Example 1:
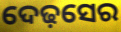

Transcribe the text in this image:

ଦେଢ଼ସେର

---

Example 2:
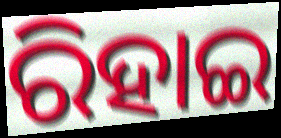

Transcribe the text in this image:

ରିହାଇ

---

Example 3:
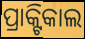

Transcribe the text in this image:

ପ୍ରାକ୍ଟିକାଲ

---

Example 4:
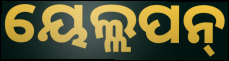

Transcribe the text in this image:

ୟେଲ୍ଲପନ୍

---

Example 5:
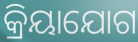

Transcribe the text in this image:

କ୍ରିୟାଯୋଗ